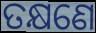
ତକ୍ଷଣେ